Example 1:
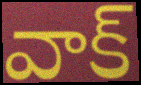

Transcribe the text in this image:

వాక్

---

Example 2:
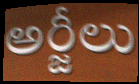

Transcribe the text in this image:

అర్జీలు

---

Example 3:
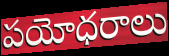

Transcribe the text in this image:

పయోధరాలు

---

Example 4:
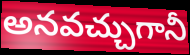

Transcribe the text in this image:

అనవచ్చుగానీ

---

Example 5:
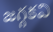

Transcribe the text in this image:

జగ్గకవి